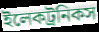
ইলেকট্রনিকস